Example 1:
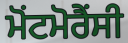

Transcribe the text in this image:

ਮੋਂਟਮੋਰੈਂਸੀ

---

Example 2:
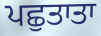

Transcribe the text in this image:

ਪਛੁਤਾਤਾ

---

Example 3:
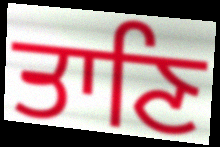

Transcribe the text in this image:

ਤਾਣਿ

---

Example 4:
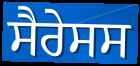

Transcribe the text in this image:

ਸੈਰੇਸਸ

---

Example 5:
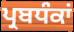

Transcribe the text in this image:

ਪ੍ਰਬਧੰਕਾਂ